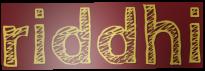
riddhi